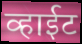
व्हाईट